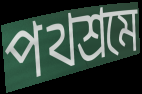
পথশ্রমে